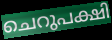
ചെറുപക്ഷി